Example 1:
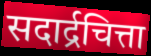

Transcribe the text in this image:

सदार्द्रचित्ता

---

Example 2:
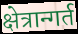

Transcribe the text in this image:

क्षेत्रान्गर्त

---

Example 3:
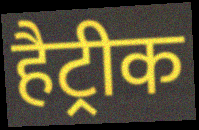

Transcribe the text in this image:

हैट्रीक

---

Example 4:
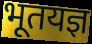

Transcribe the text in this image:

भूतयज्ञ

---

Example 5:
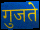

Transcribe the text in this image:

गुजते